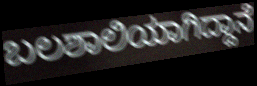
ಬಲಶಾಲಿಯಾಗಿದ್ದಾನೆ